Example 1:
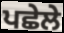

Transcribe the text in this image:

ਪਛੇਲੇ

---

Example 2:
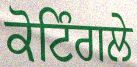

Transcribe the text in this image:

ਕੋਟਿੰਗਲੇ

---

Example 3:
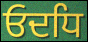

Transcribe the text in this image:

ਓਦਧਿ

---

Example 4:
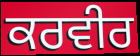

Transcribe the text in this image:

ਕਰਵੀਰ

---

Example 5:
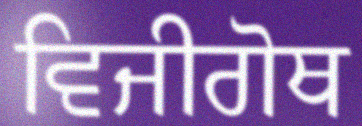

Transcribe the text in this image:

ਵਿਜੀਗੋਥ